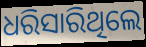
ଧରିସାରିଥିଲେ